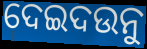
ଦେଇଦଉନୁ